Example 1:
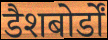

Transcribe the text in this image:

डैशबोर्डों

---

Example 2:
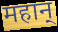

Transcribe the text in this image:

महान्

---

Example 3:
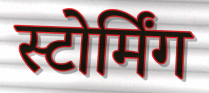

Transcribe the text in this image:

स्टोर्मिंग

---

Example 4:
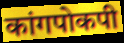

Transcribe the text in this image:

कांगपोकपी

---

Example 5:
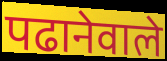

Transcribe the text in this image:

पढानेवाले